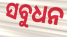
ସବୁଧନ